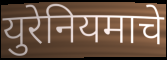
युरेनियमाचे